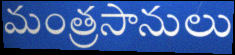
మంత్రసానులు